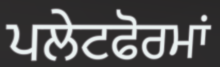
ਪਲੇਟਫੋਰਮਾਂ